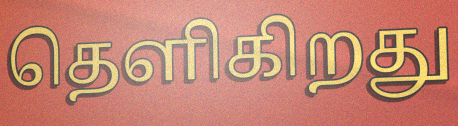
தெளிகிறது